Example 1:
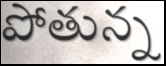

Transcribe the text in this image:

పోతున్న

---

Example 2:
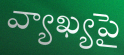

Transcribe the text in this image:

వ్యాఖ్యపై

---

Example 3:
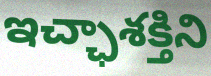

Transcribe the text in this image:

ఇచ్ఛాశక్తిని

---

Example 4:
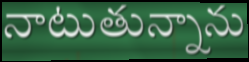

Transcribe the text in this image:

నాటుతున్నాను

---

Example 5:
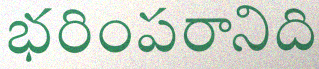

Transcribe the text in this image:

భరింపరానిది